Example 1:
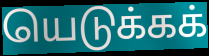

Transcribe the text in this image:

யெடுக்கக்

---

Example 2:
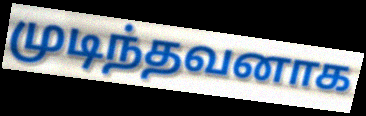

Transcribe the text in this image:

முடிந்தவனாக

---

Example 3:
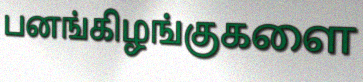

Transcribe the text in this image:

பனங்கிழங்குகளை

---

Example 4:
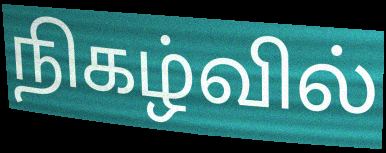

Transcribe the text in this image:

நிகழ்வில்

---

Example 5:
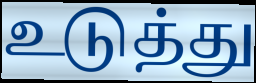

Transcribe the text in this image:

உடுத்து